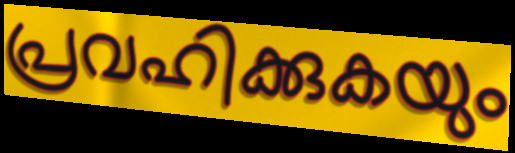
പ്രവഹിക്കുകയും